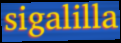
sigalilla